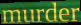
murder